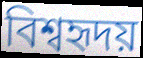
বিশ্বহৃদয়